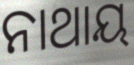
ନାଥାୟ